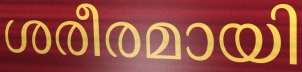
ശരീരമായി